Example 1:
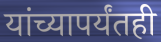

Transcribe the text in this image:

यांच्यापर्यंतही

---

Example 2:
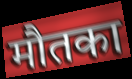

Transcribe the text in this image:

मौतका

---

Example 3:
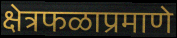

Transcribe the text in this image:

क्षेत्रफळाप्रमाणे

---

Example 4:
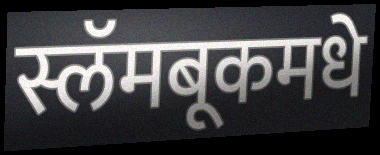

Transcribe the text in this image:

स्लॅमबूकमधे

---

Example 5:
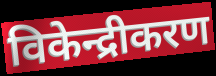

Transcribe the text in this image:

विकेन्द्रीकरण